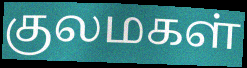
குலமகள்